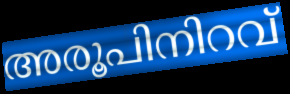
അരൂപിനിറവ്